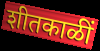
शीतकाळीं